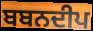
ਬਬਨਦੀਪ